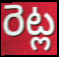
రెట్ల